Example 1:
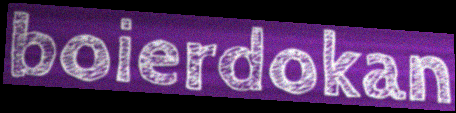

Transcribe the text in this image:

boierdokan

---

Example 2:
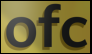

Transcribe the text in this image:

ofc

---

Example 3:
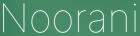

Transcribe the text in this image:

Noorani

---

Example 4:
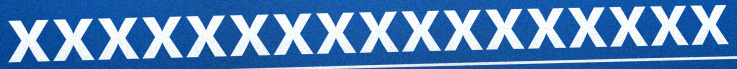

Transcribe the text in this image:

xxxxxxxxxxxxxxxxx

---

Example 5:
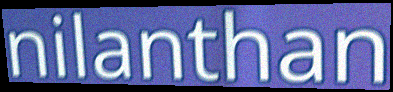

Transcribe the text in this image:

nilanthan